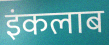
इंकलाब